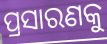
ପ୍ରସାରଣକୁ